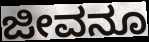
ಜೀವನೂ